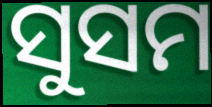
ସୁସମ